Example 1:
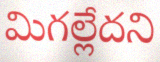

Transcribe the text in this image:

మిగల్లేదని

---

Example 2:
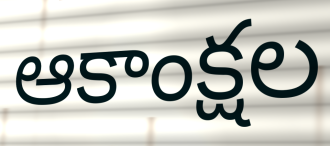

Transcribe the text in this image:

ఆకాంక్షల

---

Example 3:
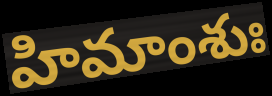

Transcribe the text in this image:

హిమాంశుః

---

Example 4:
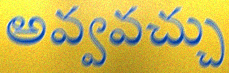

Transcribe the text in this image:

అవ్వవచ్చు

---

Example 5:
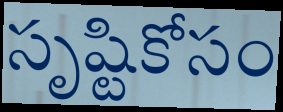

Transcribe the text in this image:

సృష్టికోసం